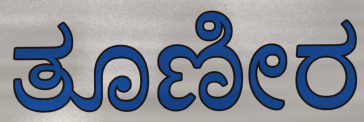
ತೂಣೀರ